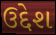
ઉદ્દેશ